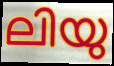
ലിയു